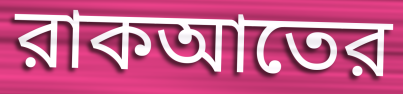
রাকআতের